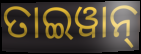
ତାଇୱାନ୍